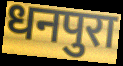
धनपुरा